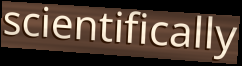
scientifically